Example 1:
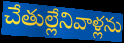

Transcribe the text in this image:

చేతుల్లేనివాళ్లను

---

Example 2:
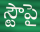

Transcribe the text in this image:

స్టౌపై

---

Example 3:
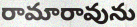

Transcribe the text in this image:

రామారావును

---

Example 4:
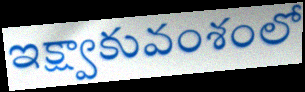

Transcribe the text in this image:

ఇక్ష్వాకువంశంలో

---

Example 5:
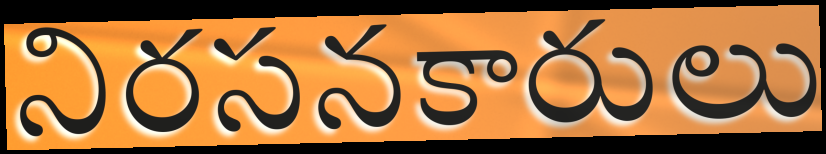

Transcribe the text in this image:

నిరసనకారులు